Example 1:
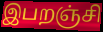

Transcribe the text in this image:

இபறஞ்சி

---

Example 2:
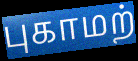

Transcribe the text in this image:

புகாமற்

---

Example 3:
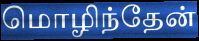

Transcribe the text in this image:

மொழிந்தேன்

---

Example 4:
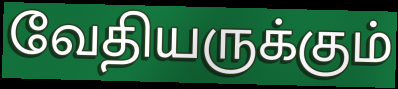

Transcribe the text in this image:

வேதியருக்கும்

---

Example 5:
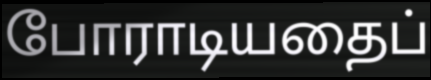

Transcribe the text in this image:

போராடியதைப்